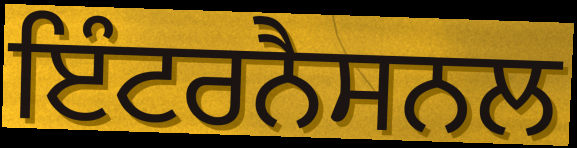
ਇੰਟਰਨੈਸਨਲ